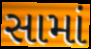
સામાં